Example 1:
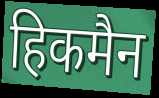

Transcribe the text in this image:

हिकमैन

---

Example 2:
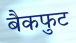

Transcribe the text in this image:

बैकफुट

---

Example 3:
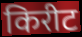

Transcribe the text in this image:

किरीट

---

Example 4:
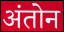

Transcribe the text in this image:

अंतोन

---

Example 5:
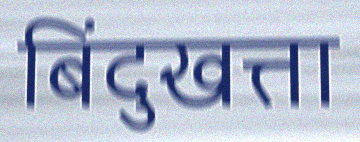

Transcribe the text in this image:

बिंदुखत्ता